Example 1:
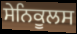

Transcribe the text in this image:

ਸੇਨਿਕੂਲਸ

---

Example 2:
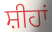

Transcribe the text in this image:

ਸ਼ੀਹਾਂ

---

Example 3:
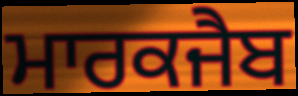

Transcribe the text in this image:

ਮਾਰਕਜੈਬ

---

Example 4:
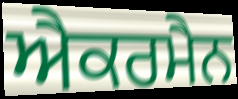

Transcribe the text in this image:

ਐਕਰਮੈਨ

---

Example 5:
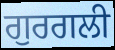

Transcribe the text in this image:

ਗੁਰਗਲੀ